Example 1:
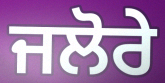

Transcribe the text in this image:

ਜਲੋਰੇ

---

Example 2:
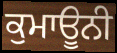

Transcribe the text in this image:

ਕੁਮਾਊਨੀ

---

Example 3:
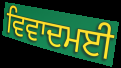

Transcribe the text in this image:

ਵਿਵਾਦਮਈ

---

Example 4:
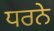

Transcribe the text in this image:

ਧਰਨੇ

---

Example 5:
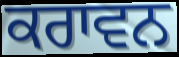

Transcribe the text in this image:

ਕਰਾਵਨ